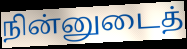
நின்னுடைத்